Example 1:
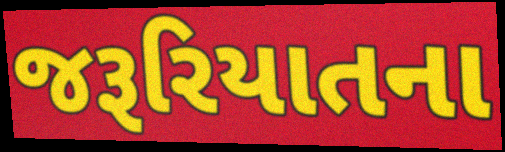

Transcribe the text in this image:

જરૂરિયાતના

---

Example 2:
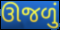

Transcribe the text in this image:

ઊજળું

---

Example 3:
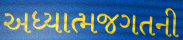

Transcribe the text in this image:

અધ્યાત્મજગતની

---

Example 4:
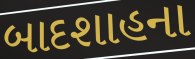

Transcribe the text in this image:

બાદશાહના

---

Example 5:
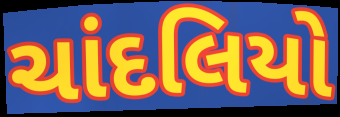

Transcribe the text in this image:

ચાંદલિયો